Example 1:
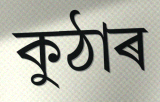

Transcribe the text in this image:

কুঠাৰ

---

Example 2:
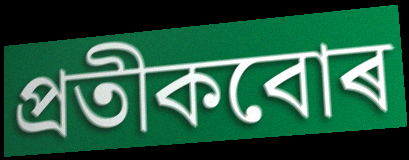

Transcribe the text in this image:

প্ৰতীকবোৰ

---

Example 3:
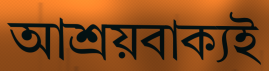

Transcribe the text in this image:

আশ্ৰয়বাক্যই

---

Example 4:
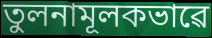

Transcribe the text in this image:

তুলনামূলকভাৱে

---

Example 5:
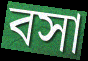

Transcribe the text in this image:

বসা